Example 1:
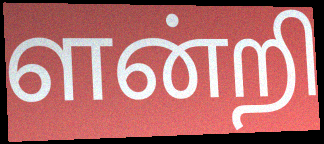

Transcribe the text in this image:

ளன்றி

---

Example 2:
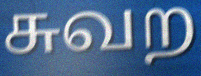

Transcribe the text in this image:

சுவற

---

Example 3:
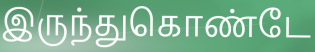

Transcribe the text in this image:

இருந்துகொண்டே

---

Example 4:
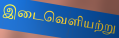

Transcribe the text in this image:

இடைவெளியற்று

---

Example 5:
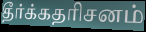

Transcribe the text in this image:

தீர்க்கதரிசனம்